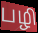
பழி